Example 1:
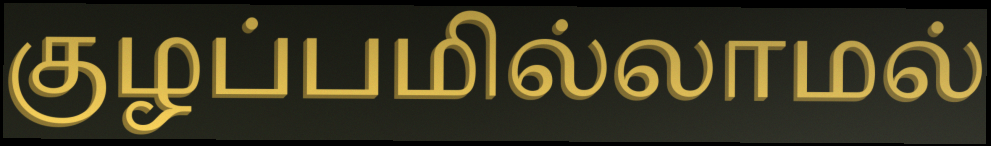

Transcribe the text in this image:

குழப்பமில்லாமல்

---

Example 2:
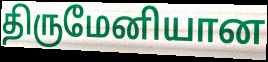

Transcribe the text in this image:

திருமேனியான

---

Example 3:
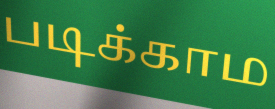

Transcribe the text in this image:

படிக்காம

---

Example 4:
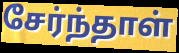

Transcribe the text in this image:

சேர்ந்தாள்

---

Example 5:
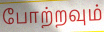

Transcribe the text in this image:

போற்றவும்